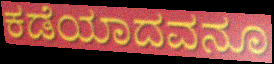
ಕಡೆಯಾದವನೂ